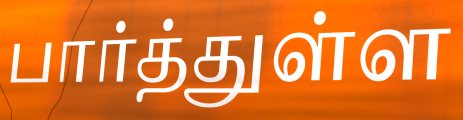
பார்த்துள்ள